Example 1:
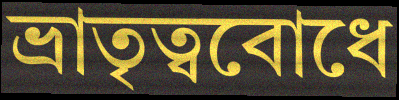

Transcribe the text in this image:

ভ্রাতৃত্ববোধে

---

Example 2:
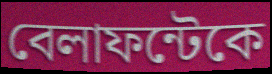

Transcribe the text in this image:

বেলাফন্টেকে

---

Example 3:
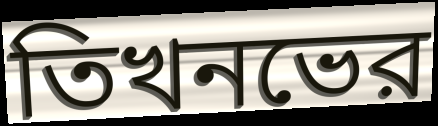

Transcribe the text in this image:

তিখনভের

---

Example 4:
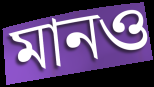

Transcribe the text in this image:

মানও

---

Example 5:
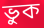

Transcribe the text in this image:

ভুক